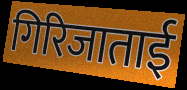
गिरिजाताई